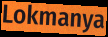
Lokmanya